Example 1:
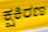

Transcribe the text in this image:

ಕ್ಷಕಿರಣ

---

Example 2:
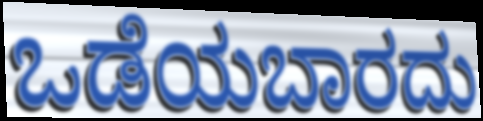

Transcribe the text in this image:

ಒಡೆಯಬಾರದು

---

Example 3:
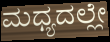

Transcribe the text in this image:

ಮಧ್ಯದಲ್ಲೇ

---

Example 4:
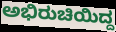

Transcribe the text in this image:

ಅಭಿರುಚಿಯಿದ್ದ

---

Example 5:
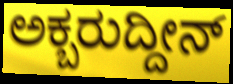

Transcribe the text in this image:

ಅಕ್ಬರುದ್ದೀನ್